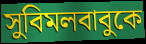
সুবিমলবাবুকে